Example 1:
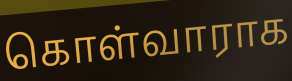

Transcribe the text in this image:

கொள்வாராக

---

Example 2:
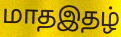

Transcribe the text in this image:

மாதஇதழ்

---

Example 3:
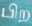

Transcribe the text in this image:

பிற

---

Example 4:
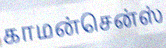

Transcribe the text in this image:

காமன்சென்ஸ்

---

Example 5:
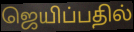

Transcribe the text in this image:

ஜெயிப்பதில்